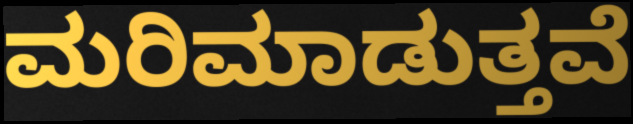
ಮರಿಮಾಡುತ್ತವೆ